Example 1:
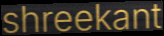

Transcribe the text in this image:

shreekant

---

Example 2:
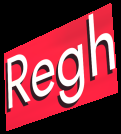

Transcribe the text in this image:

Regh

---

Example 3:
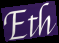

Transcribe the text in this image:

Eth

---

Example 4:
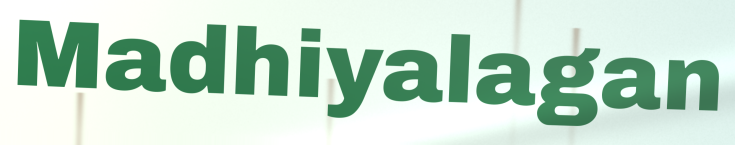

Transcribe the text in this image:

Madhiyalagan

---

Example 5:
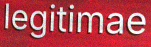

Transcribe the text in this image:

legitimae